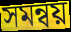
সমন্বয়